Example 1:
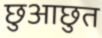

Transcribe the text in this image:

छुआछुत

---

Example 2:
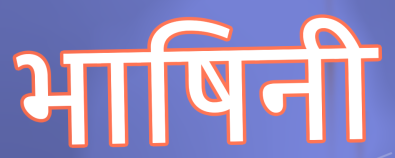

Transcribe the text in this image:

भाषिनी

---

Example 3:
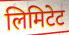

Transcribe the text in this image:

लिमिटेट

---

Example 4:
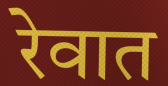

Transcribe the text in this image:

रेवात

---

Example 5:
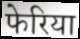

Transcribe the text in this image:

फेरिया